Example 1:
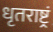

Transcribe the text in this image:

धृतराष्ट्रं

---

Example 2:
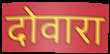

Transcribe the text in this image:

दोवारा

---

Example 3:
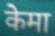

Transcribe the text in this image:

केमा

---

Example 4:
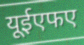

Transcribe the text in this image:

यूईएफए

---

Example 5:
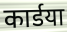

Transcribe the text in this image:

कार्डया